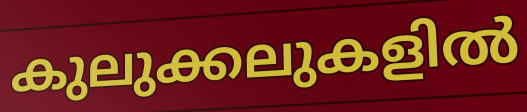
കുലുക്കലുകളിൽ